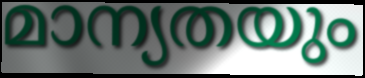
മാന്യതയും